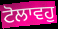
ਟੋਲਾਵਹੁ